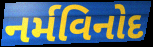
નર્મવિનોદ